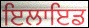
ਇਲਾਇਡ